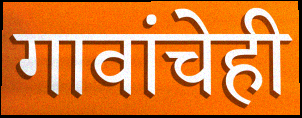
गावांचेही